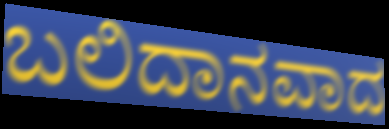
ಬಲಿದಾನವಾದ